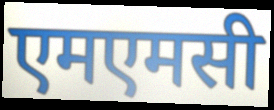
एमएमसी